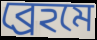
ব্রেহমে